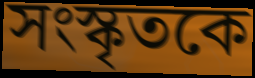
সংস্কৃতকে